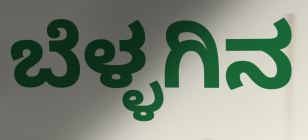
ಬೆಳ್ಳಗಿನ